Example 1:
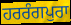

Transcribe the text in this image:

ਹਰਰੰਗਪੁਰਾ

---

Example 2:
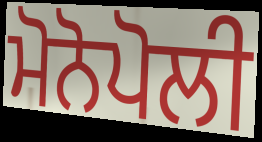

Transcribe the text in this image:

ਮੋਨੋਪੋਲੀ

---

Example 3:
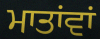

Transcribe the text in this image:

ਮਾਤਾਂਵਾਂ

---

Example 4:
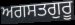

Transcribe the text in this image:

ਅਗਸਤਗੁਰੂ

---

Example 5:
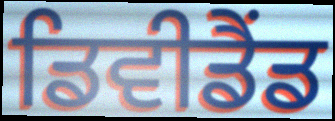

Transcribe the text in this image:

ਡਿਵੀਡੈਂਡ